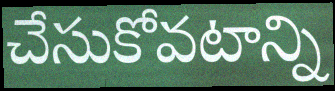
చేసుకోవటాన్ని